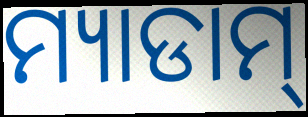
ମ୍ୟାଡାମ୍